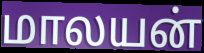
மாலயன்